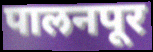
पालनपूर